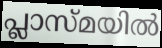
പ്ലാസ്മയിൽ